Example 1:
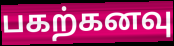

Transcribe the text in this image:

பகற்கனவு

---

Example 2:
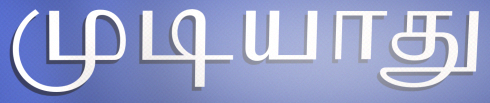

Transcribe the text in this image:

முடியாது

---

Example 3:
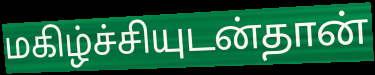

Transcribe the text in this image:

மகிழ்ச்சியுடன்தான்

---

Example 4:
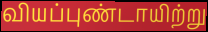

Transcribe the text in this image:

வியப்புண்டாயிற்று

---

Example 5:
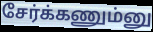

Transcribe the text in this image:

சேர்க்கணும்னு